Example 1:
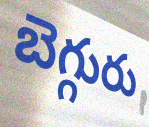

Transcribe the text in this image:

బెగ్గురు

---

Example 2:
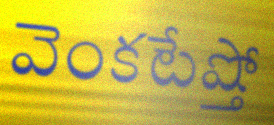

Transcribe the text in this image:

వెంకటేష్తో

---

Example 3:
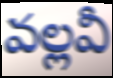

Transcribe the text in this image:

వల్లవీ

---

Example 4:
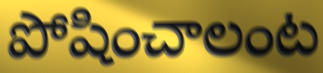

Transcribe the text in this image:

పోషించాలంట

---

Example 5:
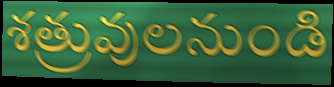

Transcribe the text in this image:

శత్రువులనుండి